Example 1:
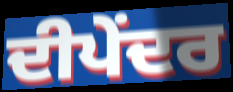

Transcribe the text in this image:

ਦੀਪੇਂਦਰ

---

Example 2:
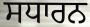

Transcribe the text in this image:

ਸਧਾਰਨ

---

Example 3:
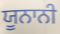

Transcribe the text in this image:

ਯੂਨਾਨੀ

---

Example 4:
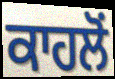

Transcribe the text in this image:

ਕਾਹਲੋਂ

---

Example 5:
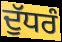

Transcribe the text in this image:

ਦੁੱਧਰੰ